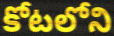
కోటలోని